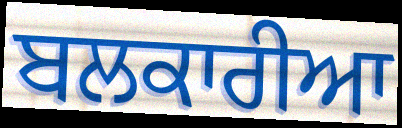
ਬਲਕਾਰੀਆ